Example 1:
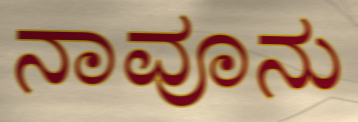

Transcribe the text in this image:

ನಾವೂನು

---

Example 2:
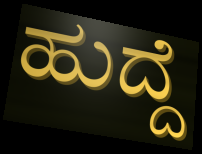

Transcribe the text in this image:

ಹುದ್ದೆ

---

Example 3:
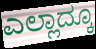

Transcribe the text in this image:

ಎಲ್ಲಾದ್ಕೂ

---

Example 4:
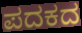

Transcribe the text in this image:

ಪದಕದ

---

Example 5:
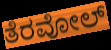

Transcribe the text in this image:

ತೆರವೋಲ್